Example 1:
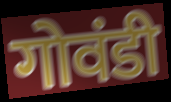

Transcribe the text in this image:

गोवंडी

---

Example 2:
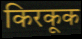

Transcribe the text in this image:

किरकूक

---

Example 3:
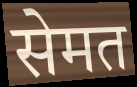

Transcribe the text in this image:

सेमत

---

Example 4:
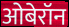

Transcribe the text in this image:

ओबेरॉन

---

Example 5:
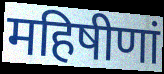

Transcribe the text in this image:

महिषीणां